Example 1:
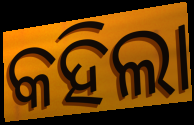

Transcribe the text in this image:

କହିଲା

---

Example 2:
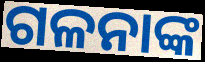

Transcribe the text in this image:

ଗଳନାଙ୍କ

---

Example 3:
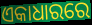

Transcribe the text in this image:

ଏକାଧାରରେ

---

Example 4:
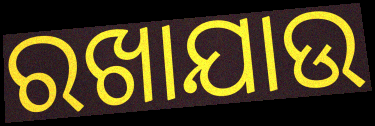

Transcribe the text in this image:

ରଖାଯାଉ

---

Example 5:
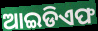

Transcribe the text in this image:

ଆଇଡିଏଫ